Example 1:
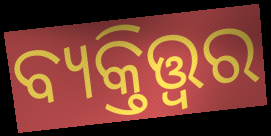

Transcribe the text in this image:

ବ୍ୟକ୍ତିତ୍ତ୍ଵର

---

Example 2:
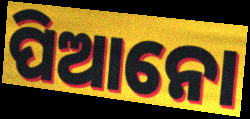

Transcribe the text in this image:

ପିଆନୋ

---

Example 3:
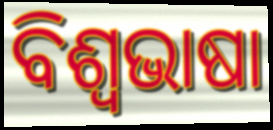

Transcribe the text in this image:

ବିଶ୍ୱଭାଷା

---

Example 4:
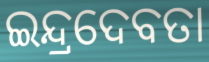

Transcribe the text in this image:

ଇନ୍ଦ୍ରଦେବତା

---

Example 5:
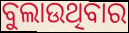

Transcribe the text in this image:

ବୁଲାଉଥିବାର